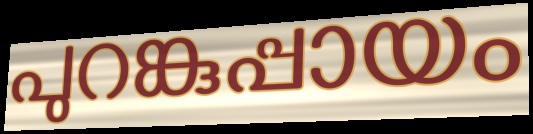
പുറങ്കുപ്പായം